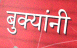
बुक्यांनी